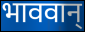
भाववान्